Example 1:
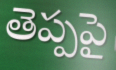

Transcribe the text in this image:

తెప్పపై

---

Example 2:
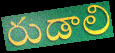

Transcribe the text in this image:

రుడాలి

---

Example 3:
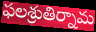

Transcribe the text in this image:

ఫలశ్రుతిర్నామ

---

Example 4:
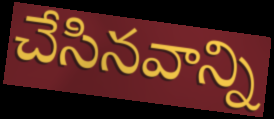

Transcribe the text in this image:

చేసినవాన్ని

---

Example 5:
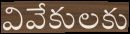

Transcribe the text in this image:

వివేకులకు